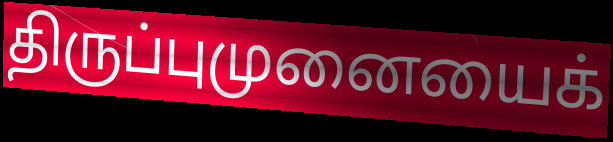
திருப்புமுனையைக்